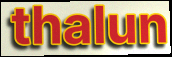
thalun